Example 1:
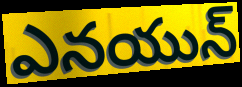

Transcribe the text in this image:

ఎనయున్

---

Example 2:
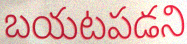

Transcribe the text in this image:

బయటపడని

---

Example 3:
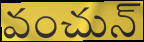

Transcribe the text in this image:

వంచున్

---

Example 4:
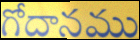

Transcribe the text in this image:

గోదానము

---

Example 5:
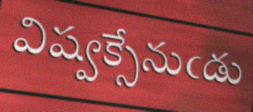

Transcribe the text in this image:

విష్వక్సేనుఁడు